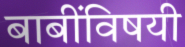
बाबींविषयी